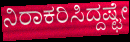
ನಿರಾಕರಿಸಿದ್ದಷ್ಟೇ